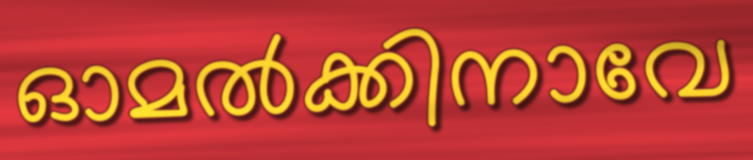
ഓമൽക്കിനാവേ